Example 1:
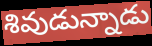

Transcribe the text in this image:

శివుడున్నాడు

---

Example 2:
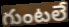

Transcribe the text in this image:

గుంటలే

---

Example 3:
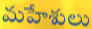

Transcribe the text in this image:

మహేశులు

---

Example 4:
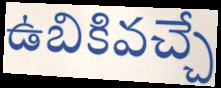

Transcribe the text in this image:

ఉబికివచ్చే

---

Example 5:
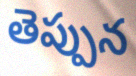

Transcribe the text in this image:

తెప్పున